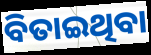
ବିତାଇଥିବା